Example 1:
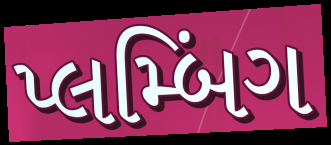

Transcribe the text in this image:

પ્લમ્બિંગ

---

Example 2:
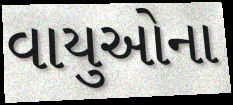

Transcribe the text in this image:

વાયુઓના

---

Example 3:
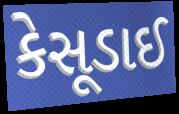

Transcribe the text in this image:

કેસૂડાઈ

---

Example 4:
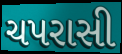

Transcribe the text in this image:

ચપરાસી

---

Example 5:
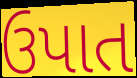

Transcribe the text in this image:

ઉપાત